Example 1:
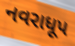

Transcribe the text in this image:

નવરાધૂપ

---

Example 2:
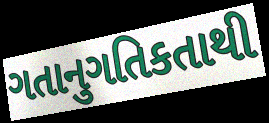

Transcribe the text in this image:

ગતાનુગતિકતાથી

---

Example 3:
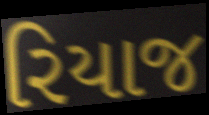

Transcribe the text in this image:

રિયાજ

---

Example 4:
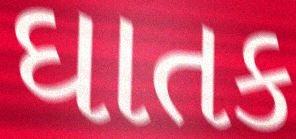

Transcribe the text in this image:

ઘાતક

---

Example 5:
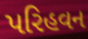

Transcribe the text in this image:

પરિહવન